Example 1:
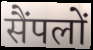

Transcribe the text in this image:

सैंपलों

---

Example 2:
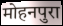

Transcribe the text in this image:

मोहनपुरा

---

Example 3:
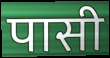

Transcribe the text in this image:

पासी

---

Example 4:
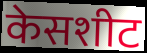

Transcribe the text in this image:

केसशीट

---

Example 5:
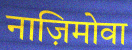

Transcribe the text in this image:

नाज़िमोवा